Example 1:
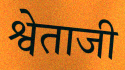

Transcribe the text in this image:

श्वेताजी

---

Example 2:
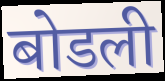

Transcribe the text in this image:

बोडली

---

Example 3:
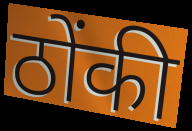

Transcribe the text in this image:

ठोंकी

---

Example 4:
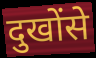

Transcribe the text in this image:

दुखोंसे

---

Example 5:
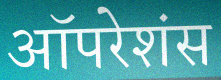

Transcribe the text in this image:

ऑपरेशंस